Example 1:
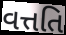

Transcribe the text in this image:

વત્તતિ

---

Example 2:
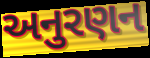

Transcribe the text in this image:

અનુરણન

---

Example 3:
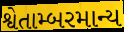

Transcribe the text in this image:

શ્વેતામ્બરમાન્ય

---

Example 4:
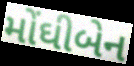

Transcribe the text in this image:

મોંઘીબેન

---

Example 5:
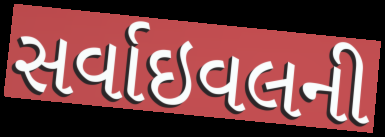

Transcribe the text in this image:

સર્વાઇવલની